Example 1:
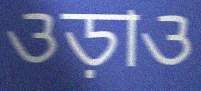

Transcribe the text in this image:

ওড়াও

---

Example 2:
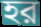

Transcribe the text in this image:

হর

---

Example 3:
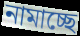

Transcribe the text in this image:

নামাচ্ছে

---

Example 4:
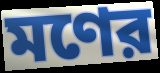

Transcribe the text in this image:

মণের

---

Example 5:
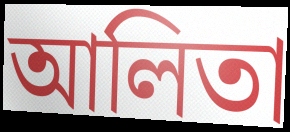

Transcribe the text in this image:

আলিতা